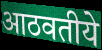
आठवतीये